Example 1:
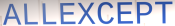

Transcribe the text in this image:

ALLEXCEPT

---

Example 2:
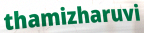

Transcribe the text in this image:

thamizharuvi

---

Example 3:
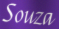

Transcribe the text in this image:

Souza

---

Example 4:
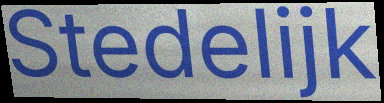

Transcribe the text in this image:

Stedelijk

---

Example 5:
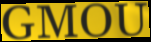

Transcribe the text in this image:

GMOU